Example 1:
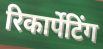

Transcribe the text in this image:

रिकार्पेटिंग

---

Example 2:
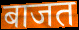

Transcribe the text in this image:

बाजत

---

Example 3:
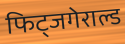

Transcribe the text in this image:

फिट्जगेराल्ड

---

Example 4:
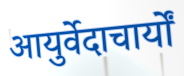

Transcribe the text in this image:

आयुर्वेदाचार्यों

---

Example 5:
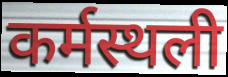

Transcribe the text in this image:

कर्मस्थली